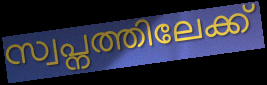
സ്വപ്നത്തിലേക്ക്